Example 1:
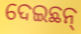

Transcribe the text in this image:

ଦେଇଛନ୍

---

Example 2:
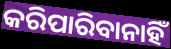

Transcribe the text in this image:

କରିପାରିବାନାହିଁ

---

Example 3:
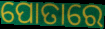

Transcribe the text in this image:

ପୋତାରେ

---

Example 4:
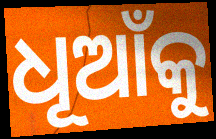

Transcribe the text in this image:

ଧୂଆଁକୁ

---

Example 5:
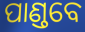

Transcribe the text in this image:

ପାଣ୍ଡବେ